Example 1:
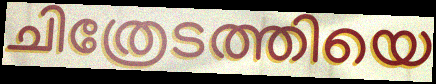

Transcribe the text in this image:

ചിത്രേടത്തിയെ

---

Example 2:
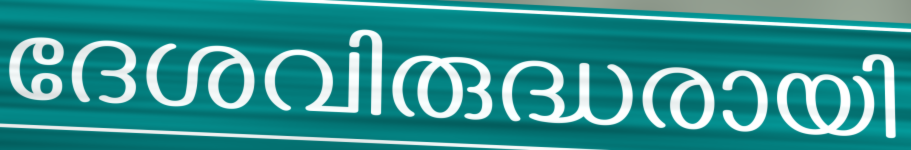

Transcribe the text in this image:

ദേശവിരുദ്ധരായി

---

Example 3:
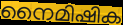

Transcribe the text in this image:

നൈമിഷിക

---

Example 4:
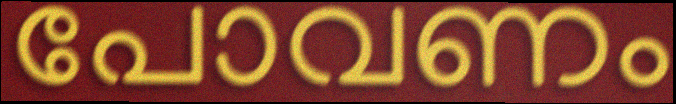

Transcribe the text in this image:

പോവണം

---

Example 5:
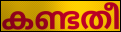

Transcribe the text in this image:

കണ്ടതീ